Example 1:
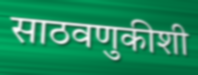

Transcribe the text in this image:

साठवणुकीशी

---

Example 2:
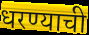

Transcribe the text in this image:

धरण्याची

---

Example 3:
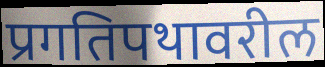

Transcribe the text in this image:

प्रगतिपथावरील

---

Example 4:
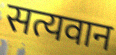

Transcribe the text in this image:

सत्यवान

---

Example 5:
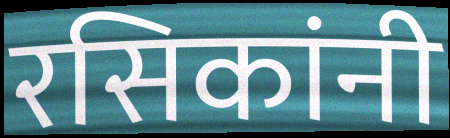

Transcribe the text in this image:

रसिकांनी